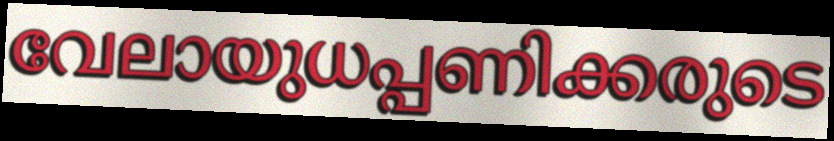
വേലായുധപ്പണിക്കരുടെ